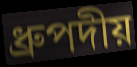
ধ্রুপদীয়